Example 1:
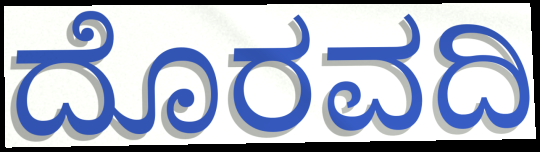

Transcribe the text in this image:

ದೊರವದಿ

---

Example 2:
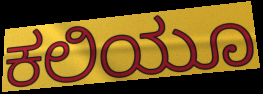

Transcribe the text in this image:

ಕಲಿಯೂ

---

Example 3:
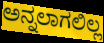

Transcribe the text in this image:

ಅನ್ನಲಾಗಲಿಲ್ಲ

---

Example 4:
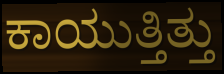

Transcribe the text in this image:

ಕಾಯುತ್ತಿತ್ತು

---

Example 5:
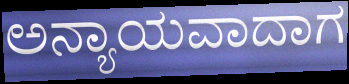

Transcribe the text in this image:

ಅನ್ಯಾಯವಾದಾಗ